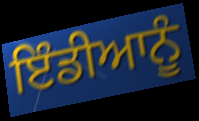
ਇੰਡੀਆਨੂੰ